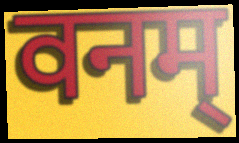
वनम्